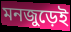
মনজুড়েই